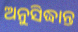
ଅନୁସିଦ୍ଧାନ୍ତ